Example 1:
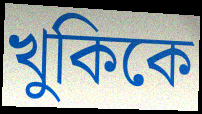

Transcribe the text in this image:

খুকিকে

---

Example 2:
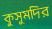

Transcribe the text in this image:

কুসুমদির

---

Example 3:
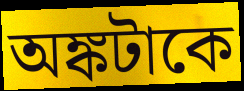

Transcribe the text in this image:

অঙ্কটাকে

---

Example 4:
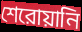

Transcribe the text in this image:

শেরোয়ানি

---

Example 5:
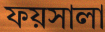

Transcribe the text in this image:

ফয়সালা